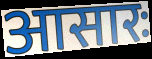
आसारः